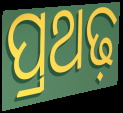
ପ୍ରଥଢ଼